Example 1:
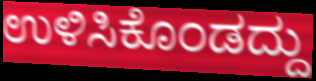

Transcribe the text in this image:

ಉಳಿಸಿಕೊಂಡದ್ದು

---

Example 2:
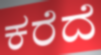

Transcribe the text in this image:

ಕರೆದೆ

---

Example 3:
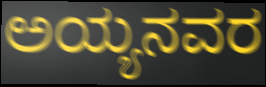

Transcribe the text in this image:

ಅಯ್ಯನವರ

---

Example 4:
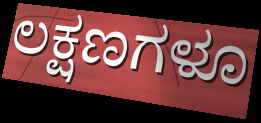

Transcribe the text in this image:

ಲಕ್ಷಣಗಳೂ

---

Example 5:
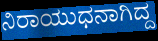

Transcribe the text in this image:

ನಿರಾಯುಧನಾಗಿದ್ದ